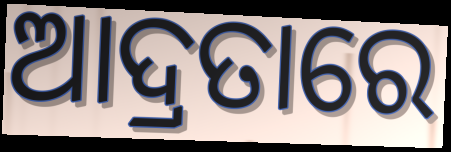
ଆଦ୍ରତାରେ